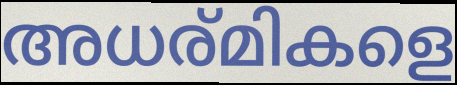
അധര്മികളെ